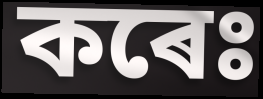
কৰেঃ